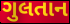
ગુલતાન